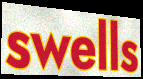
swells